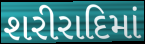
શરીરાદિમાં